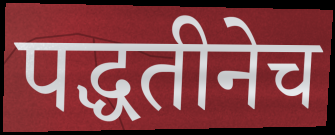
पद्धतीनेच